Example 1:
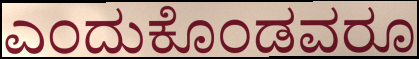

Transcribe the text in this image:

ಎಂದುಕೊಂಡವರೂ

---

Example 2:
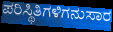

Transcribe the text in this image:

ಪರಿಸ್ಥಿತಿಗಳಿಗನುಸಾರ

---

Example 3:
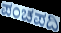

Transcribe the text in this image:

ಪಂಚಪದಿ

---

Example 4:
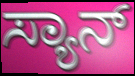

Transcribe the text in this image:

ಸ್ಯಾನ್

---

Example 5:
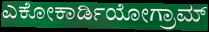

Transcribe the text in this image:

ಎಕೋಕಾರ್ಡಿಯೋಗ್ರಾಮ್